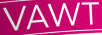
VAWT